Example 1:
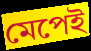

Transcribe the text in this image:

মেপেই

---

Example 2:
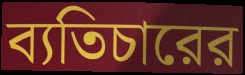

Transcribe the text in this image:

ব্যতিচারের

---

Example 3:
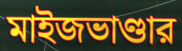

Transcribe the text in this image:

মাইজভাণ্ডার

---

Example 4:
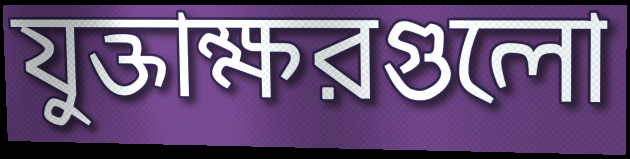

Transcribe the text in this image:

যুক্তাক্ষরগুলো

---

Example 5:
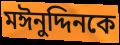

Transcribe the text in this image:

মঈনুদ্দিনকে